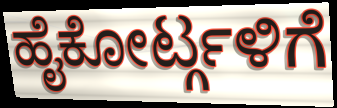
ಹೈಕೋರ್ಟ್ಗಳಿಗೆ